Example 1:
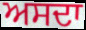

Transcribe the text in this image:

ਅਸਦਾ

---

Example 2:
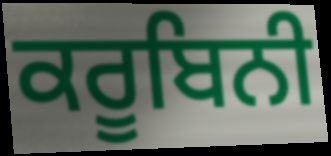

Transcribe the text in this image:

ਕਰੂਬਿਨੀ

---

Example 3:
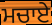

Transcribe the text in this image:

ਮਚਾਏ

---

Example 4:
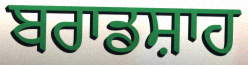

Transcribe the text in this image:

ਬਰਾਡਸ਼ਾਹ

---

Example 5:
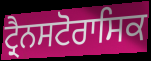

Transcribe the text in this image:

ਟ੍ਰੈਨਸਟੋਰਾਸਿਕ